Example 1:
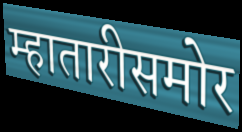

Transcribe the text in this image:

म्हातारीसमोर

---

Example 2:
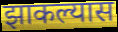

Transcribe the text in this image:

झाकल्यास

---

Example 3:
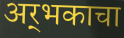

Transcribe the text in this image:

अर्भकाचा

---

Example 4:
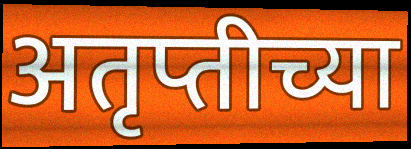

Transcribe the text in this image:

अतृप्तीच्या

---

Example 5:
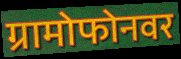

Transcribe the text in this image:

ग्रामोफोनवर